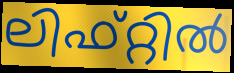
ലിഫ്റ്റിൽ